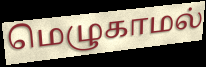
மெழுகாமல்